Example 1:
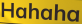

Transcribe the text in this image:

Hahaha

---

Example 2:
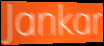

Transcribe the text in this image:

Jankar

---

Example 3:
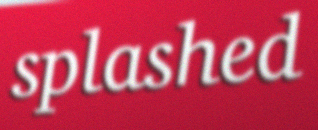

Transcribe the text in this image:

splashed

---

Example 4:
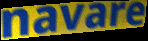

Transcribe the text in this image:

navare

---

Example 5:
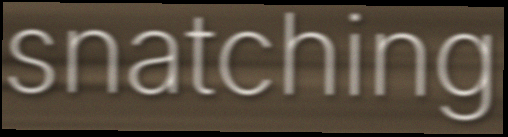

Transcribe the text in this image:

snatching